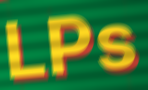
LPs